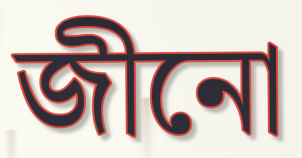
জীনো